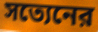
সত্যেনের